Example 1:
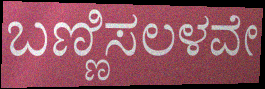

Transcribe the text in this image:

ಬಣ್ಣಿಸಲಳವೇ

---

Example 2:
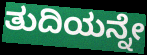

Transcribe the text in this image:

ತುದಿಯನ್ನೇ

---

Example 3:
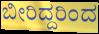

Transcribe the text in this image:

ಬೀರಿದ್ದರಿಂದ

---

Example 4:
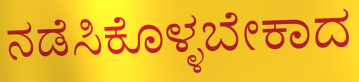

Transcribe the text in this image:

ನಡೆಸಿಕೊಳ್ಳಬೇಕಾದ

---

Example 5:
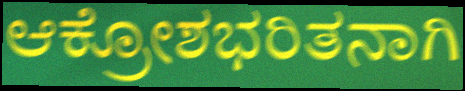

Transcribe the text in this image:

ಆಕ್ರೋಶಭರಿತನಾಗಿ